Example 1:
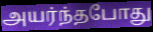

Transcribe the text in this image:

அயர்ந்தபோது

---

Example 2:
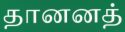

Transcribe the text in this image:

தானனத்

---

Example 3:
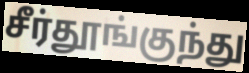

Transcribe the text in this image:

சீர்தூங்குந்து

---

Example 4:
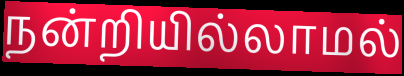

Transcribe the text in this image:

நன்றியில்லாமல்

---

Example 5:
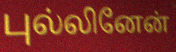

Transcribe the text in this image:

புல்லினேன்